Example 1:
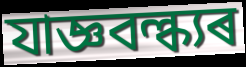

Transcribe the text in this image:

যাজ্ঞবল্ক্যৰ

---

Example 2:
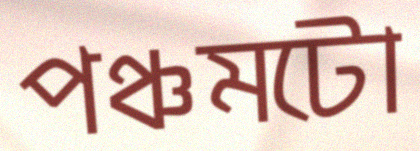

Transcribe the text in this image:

পঞ্চমটো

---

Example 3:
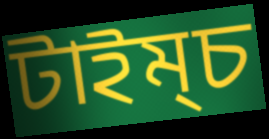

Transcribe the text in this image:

টাইম্‌চ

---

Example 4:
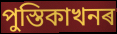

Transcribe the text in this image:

পুস্তিকাখনৰ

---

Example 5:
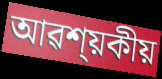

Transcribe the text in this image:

আৱশ্য়কীয়